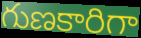
గుణకారిగా